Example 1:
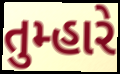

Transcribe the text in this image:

તુમ્હારે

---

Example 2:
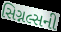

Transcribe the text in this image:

સિગ્નલ્સની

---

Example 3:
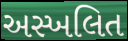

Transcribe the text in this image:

અસ્ખલિત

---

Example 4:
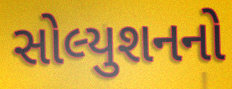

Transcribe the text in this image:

સોલ્યુશનનો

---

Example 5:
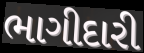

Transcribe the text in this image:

ભાગીદારી